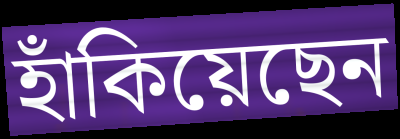
হাঁকিয়েছেন